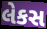
લેકસ